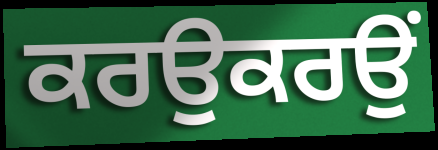
ਕਰਉਕਰਉਂ